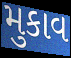
મુકાવ